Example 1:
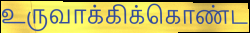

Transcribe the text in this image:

உருவாக்கிக்கொண்ட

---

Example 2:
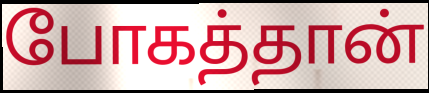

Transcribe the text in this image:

போகத்தான்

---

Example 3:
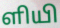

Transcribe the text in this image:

ளியி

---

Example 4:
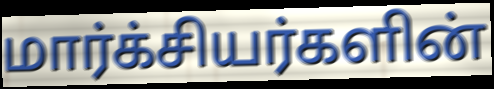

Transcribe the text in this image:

மார்க்சியர்களின்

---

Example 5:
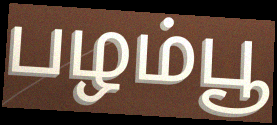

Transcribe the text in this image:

பழம்பூ